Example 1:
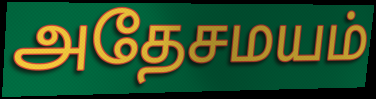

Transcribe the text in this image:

அதேசமயம்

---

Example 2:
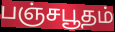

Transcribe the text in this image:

பஞ்சபூதம்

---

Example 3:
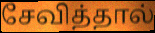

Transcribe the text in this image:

சேவித்தால்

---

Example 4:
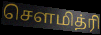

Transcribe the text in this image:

சௌமித்ரி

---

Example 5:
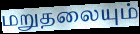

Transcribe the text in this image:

மறுதலையும்